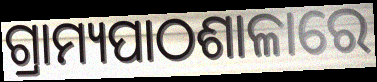
ଗ୍ରାମ୍ୟପାଠଶାଳାରେ